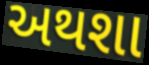
અથશા